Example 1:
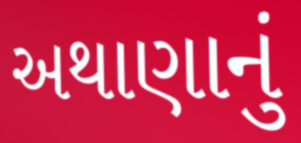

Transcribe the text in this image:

અથાણાનું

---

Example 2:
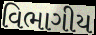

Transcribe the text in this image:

વિભાગીય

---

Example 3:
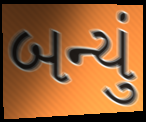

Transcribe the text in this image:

બન્યું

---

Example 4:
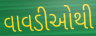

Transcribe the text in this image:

વાવડીઓથી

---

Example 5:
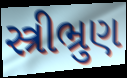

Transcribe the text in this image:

સ્ત્રીભ્રુણ